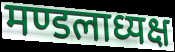
मण्डलाध्यक्ष